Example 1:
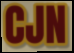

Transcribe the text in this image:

CJN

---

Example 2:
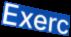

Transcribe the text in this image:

Exerc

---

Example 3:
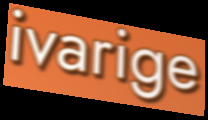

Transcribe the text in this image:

ivarige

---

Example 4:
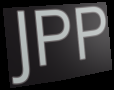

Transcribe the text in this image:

JPP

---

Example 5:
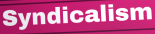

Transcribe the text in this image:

Syndicalism